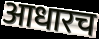
आधारच